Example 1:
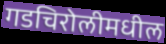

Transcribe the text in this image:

गडचिरोलीमधील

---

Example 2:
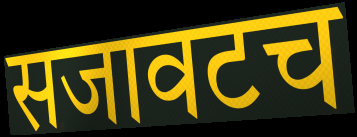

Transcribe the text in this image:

सजावटच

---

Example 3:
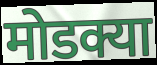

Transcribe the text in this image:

मोडक्या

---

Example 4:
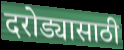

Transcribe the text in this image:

दरोड्यासाठी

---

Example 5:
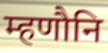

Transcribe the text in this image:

म्हणौनि